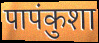
पापंकुशा